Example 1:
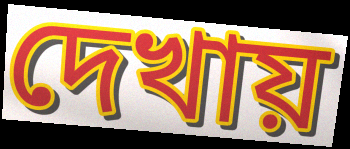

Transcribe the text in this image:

দেখায়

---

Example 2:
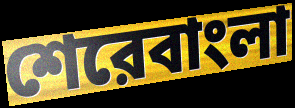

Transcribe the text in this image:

শেরেবাংলা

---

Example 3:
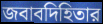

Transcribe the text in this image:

জবাবদিহিতার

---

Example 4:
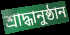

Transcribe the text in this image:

শ্রাদ্ধানুষ্ঠান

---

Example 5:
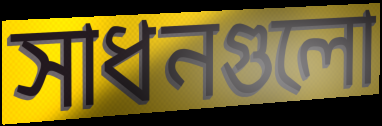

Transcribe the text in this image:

সাধনগুলো